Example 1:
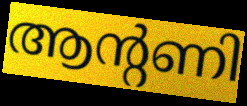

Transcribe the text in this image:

ആന്റണി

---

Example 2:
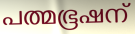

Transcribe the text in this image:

പത്മഭൂഷന്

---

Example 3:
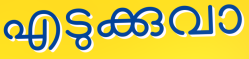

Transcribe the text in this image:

എടുക്കുവാ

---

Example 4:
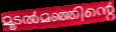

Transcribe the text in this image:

മൂടൽമഞ്ഞിന്റെ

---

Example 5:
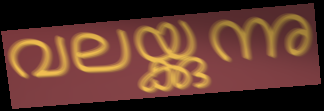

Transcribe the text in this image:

വലയ്ക്കുന്നു